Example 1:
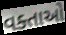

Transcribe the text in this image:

વક્તાઓ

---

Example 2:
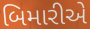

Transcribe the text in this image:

બિમારીએ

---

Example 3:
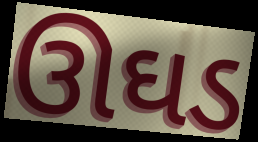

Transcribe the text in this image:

ઊઘડ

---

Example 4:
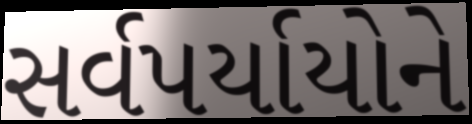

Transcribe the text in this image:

સર્વપર્યાયોને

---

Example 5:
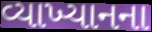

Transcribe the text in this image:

વ્યાખ્યાનના